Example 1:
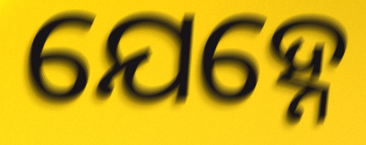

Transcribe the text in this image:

ଯେହ୍ନେ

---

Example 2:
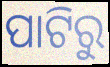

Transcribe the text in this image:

ପାଟିରୁ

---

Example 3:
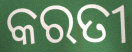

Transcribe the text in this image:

କରତୀ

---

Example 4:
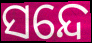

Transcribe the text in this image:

ସନ୍ଦେ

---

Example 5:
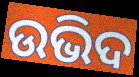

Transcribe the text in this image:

ଉଭିଦ